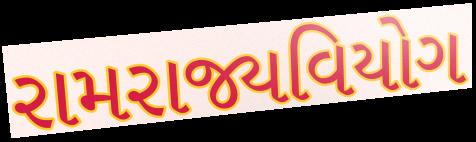
રામરાજ્યવિયોગ